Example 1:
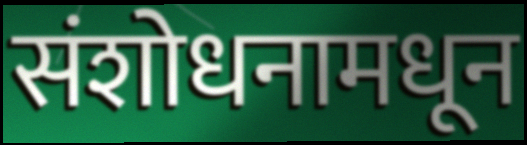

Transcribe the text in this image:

संशोधनामधून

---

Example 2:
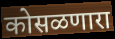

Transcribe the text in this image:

कोसळणारा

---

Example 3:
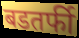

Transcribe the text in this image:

बडतर्फी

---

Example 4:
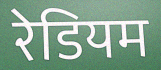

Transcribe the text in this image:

रेडियम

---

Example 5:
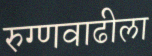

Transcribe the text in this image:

रुग्णवाढीला